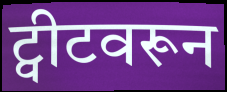
ट्वीटवरून